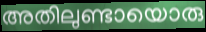
അതിലുണ്ടായൊരു